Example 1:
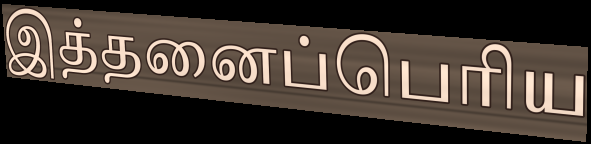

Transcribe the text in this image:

இத்தனைப்பெரிய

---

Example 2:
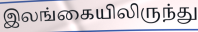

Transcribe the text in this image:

இலங்கையிலிருந்து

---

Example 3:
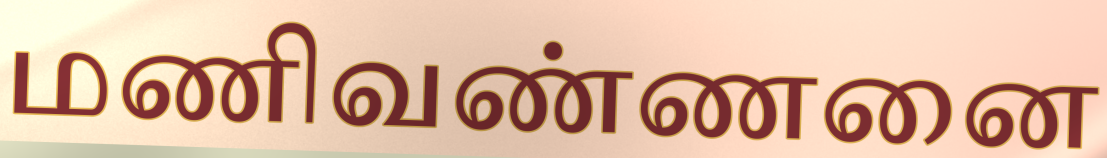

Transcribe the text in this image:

மணிவண்ணனை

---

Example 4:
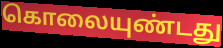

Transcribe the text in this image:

கொலையுண்டது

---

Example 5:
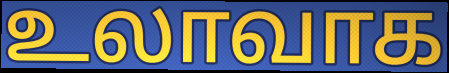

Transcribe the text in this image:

உலாவாக